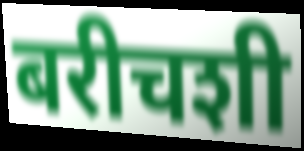
बरीचशी